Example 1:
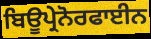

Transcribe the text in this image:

ਬਿਊਪ੍ਰੇਨੋਰਫਾਈਨ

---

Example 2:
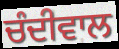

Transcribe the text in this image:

ਚੰਦੀਵਾਲ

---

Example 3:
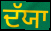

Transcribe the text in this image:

ਦੱਯਾ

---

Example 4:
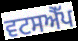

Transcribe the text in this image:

ਵਟਸਐੱਪ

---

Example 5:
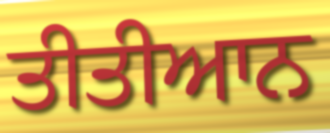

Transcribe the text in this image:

ਤੀਤੀਆਨ